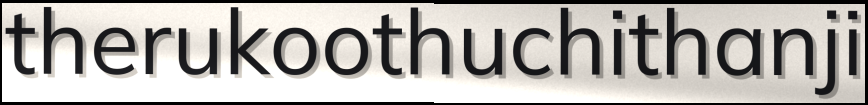
therukoothuchithanji